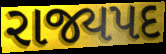
રાજ્યપદ